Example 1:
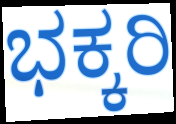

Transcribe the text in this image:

ಭಕ್ಕರಿ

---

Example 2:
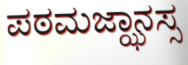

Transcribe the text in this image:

ಪಠಮಜ್ಝಾನಸ್ಸ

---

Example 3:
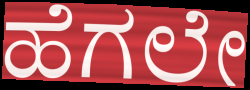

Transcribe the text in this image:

ಹೆಗಲೇ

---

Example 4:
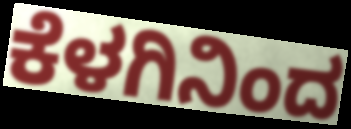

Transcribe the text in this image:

ಕೆಳಗಿನಿಂದ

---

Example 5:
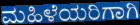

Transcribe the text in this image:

ಮಹಿಳೆಯರಿಗಾಗಿ